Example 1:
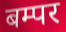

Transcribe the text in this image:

बम्पर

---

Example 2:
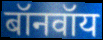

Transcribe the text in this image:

बॉनवॉय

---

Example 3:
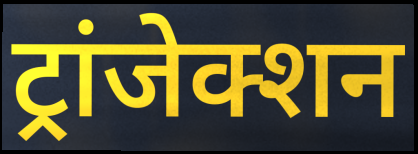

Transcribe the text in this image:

ट्रांजेक्शन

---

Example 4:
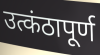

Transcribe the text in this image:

उत्कंठापूर्ण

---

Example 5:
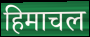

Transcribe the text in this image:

हिमाचल